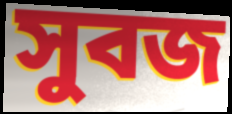
সুবজ